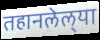
तहानलेल्या